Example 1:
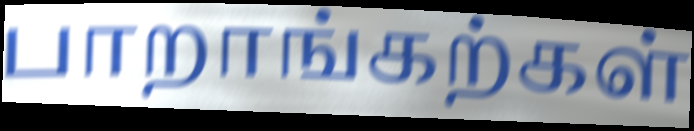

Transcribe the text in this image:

பாறாங்கற்கள்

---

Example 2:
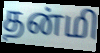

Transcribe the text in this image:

தன்மி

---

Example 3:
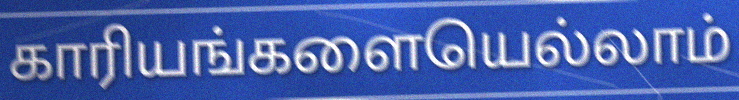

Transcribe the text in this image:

காரியங்களையெல்லாம்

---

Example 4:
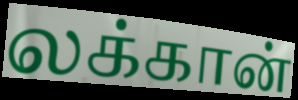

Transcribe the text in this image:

லக்கான்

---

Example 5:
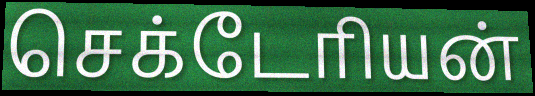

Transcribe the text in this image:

செக்டேரியன்